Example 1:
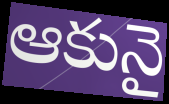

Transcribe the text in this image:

ఆకునై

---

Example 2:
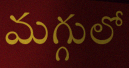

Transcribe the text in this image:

మగ్గులో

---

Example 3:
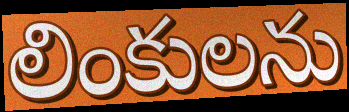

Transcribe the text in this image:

లింకులను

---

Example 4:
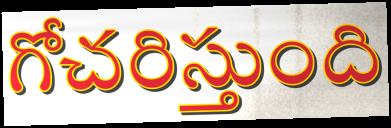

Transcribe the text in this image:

గోచరిస్తుంది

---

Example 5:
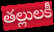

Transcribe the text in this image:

తల్లులకీ